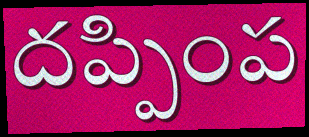
దప్పింప